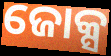
ଜୋକ୍ସ